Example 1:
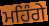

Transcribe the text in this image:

ਮਹਿੰਗੇ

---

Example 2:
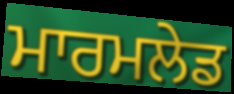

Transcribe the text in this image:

ਮਾਰਮਲੇਡ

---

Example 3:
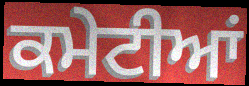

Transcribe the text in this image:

ਕਮੇਟੀਆਂ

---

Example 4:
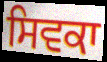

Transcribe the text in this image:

ਸਿਵਕਾ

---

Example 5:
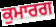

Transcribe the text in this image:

ਕੁਮਾਰਗ